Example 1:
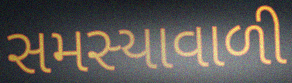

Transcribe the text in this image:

સમસ્યાવાળી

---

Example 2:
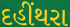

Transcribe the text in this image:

દહીંથરા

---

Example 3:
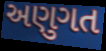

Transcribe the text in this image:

અણુગત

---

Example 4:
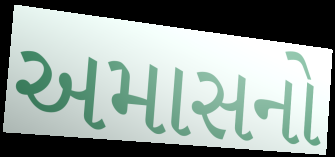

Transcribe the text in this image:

અમાસનો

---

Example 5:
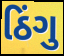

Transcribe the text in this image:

ઠિંગુ